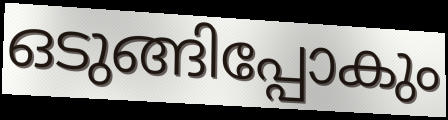
ഒടുങ്ങിപ്പോകും